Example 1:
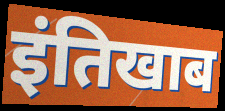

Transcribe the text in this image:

इंतिखाब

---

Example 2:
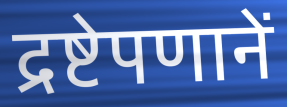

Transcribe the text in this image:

द्रष्टेपणानें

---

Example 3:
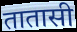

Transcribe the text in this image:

तातासी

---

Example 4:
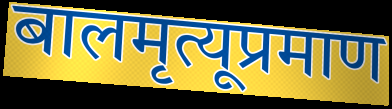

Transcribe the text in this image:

बालमृत्यूप्रमाण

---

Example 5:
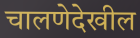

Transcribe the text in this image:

चालणेदेखील